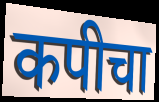
कपीचा